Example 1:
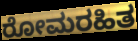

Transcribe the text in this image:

ರೋಮರಹಿತ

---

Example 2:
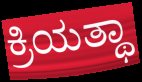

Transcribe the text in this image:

ಕ್ರಿಯತ್ಥಾ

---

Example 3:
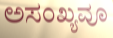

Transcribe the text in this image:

ಅಸಂಖ್ಯವೂ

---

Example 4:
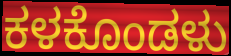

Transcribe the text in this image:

ಕಳಕೊಂಡಳು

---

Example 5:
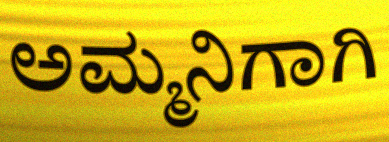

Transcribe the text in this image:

ಅಮ್ಮನಿಗಾಗಿ